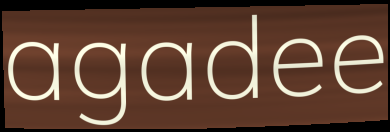
agadee